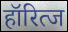
हॉरित्ज